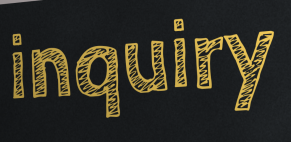
inquiry